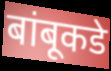
बांबूकडे